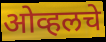
ओव्हलचे